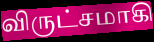
விருட்சமாகி